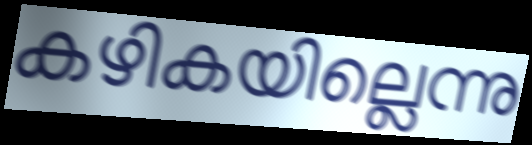
കഴികയില്ലെന്നു